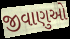
જીવાણુઓ